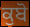
ਕੁਬੋ